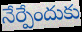
నేర్పేందుకు